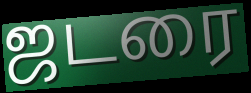
ஜடரை